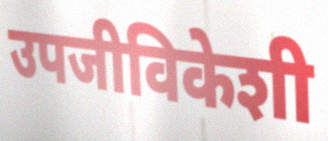
उपजीविकेशी